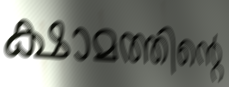
ക്ഷാമത്തിന്റെ